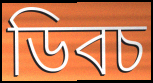
ডিবচ